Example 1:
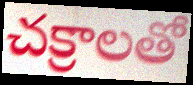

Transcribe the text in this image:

చక్రాలతో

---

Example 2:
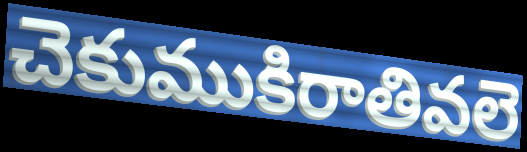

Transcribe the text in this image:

చెకుముకిరాతివలె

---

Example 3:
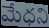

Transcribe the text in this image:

మేధని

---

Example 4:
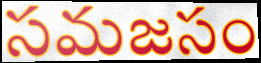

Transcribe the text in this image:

సమజసం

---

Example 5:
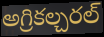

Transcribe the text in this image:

అగ్రికల్చరల్